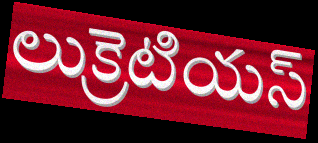
లుక్రెటియస్